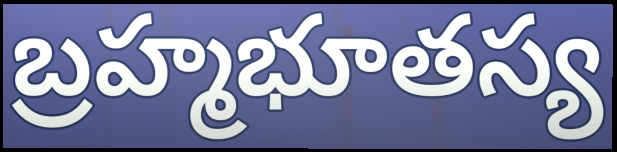
బ్రహ్మభూతస్య